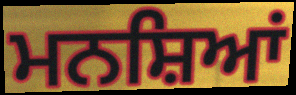
ਮਨਸ਼ਿਆਂ